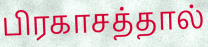
பிரகாசத்தால்